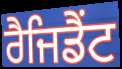
ਰੈਜਿਡੈਂਟ